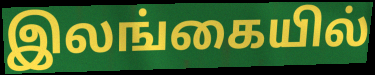
இலங்கையில்